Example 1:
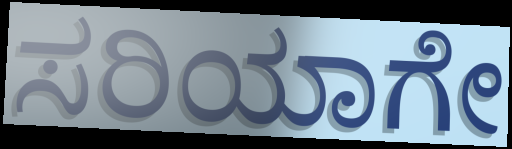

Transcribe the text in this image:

ಸರಿಯಾಗೇ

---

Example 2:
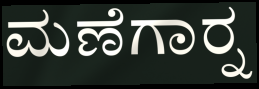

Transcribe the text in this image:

ಮಣೆಗಾರ್‍ನ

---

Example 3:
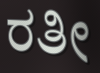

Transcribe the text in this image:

ರತೀ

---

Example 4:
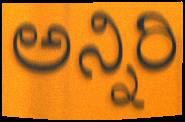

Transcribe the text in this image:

ಅನ್ನಿರಿ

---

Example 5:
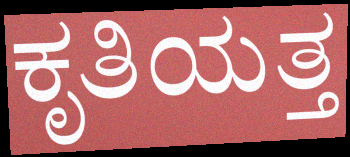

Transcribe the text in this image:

ಕೃತಿಯತ್ತ